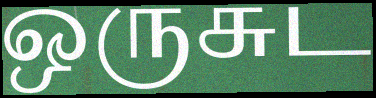
ஒருசுட